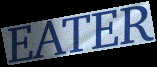
EATER